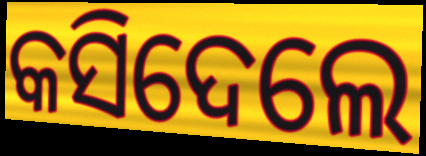
କସିଦେଲେ